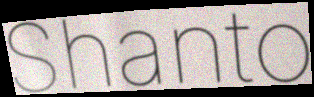
Shanto